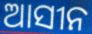
ଆସୀନ